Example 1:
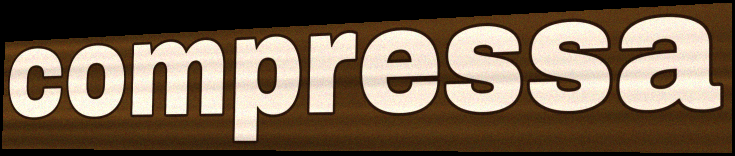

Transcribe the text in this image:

compressa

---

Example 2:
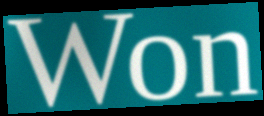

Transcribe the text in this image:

Won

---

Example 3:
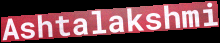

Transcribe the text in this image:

Ashtalakshmi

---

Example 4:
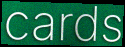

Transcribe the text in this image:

cards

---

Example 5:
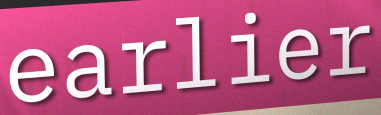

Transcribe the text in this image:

earlier